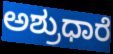
ಅಶ್ರುಧಾರೆ